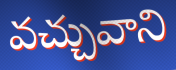
వచ్చువాని